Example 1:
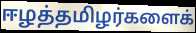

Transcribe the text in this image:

ஈழத்தமிழர்களைக்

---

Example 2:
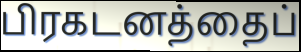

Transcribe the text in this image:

பிரகடனத்தைப்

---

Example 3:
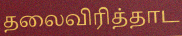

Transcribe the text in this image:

தலைவிரித்தாட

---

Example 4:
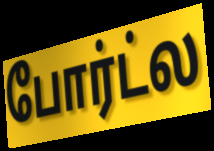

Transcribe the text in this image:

போர்ட்ல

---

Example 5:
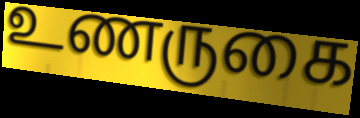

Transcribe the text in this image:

உணருகை